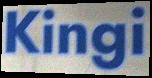
Kingi